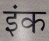
इंक